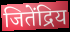
जितेंद्रिय